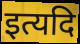
इत्यदि